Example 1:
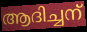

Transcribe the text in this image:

ആദിച്ചന്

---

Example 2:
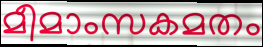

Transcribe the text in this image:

മീമാംസകമതം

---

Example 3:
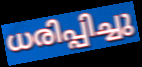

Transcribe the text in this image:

ധരിപ്പിച്ചു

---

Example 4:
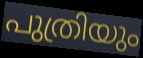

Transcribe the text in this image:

പുത്രിയും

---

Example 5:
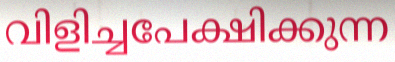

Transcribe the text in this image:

വിളിച്ചപേക്ഷിക്കുന്ന